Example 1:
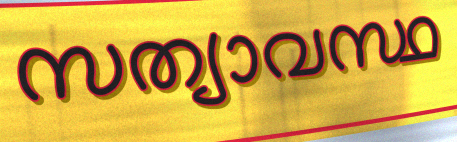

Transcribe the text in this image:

സത്യാവസ്ഥ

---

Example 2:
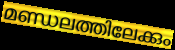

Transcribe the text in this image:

മണ്ഡലത്തിലേക്കും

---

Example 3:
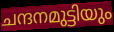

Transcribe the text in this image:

ചന്ദനമുട്ടിയും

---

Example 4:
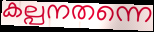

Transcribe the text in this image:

കല്പനതന്നെ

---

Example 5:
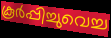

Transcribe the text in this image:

കൂർപ്പിച്ചുവെച്ച